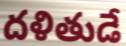
దళితుడే